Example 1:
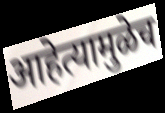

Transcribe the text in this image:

आहेत्यामुळेच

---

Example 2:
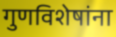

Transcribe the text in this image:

गुणविशेषांना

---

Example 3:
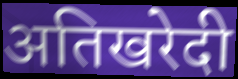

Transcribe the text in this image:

अतिखरेदी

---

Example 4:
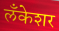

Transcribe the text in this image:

लँकेशर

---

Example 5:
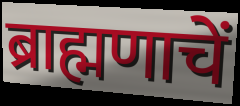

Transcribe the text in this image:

ब्राह्मणाचें